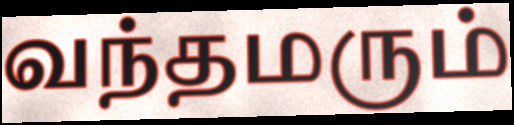
வந்தமரும்